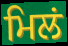
ਮਿਲਂ